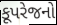
કૂપરેજનો